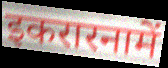
इकरारनामें